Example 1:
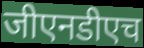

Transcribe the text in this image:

जीएनडीएच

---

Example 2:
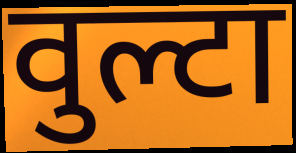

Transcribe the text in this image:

वुल्टा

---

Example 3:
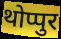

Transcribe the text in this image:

थोप्पुर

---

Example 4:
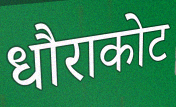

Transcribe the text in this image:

धौराकोट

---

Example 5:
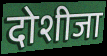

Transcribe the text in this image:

दोशीजा